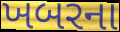
ખબરના